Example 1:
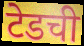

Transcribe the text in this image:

टेडची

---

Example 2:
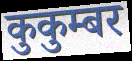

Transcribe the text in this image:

कुकुम्बर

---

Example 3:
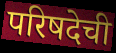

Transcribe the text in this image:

परिषदेची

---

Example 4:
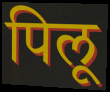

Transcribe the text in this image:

पिलू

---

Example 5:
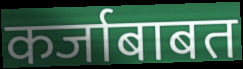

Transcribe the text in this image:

कर्जाबाबत